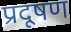
प्रदूषण